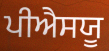
ਪੀਐਸਯੂ